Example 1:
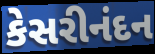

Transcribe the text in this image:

કેસરીનંદન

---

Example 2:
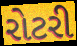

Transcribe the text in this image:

રોટરી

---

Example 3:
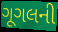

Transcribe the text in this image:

ગૂગલની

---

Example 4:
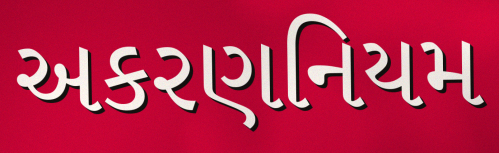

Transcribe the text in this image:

અકરણનિયમ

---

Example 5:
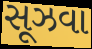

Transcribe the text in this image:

સૂઝવા